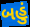
બહું